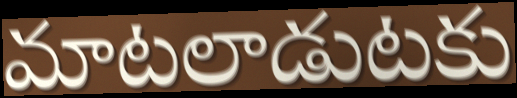
మాటలాడుటకు